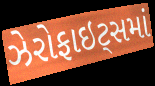
ઝેરોફાઇટ્સમાં